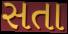
સતા